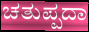
ಚತುಪ್ಪದಾ